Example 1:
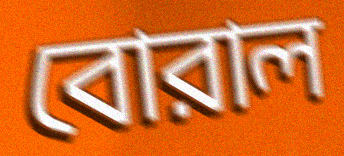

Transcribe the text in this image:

বোরাল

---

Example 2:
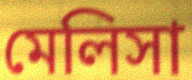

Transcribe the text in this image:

মেলিসা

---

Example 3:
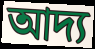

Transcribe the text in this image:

আদ্য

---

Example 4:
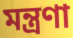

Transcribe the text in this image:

মন্ত্রণা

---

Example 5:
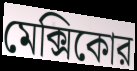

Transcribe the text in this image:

মেক্সিকোর